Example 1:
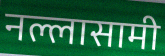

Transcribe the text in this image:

नल्लासामी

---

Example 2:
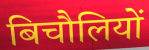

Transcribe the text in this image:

बिचौलियों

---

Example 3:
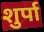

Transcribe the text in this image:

शुर्पा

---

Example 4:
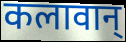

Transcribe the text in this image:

कलावान्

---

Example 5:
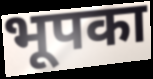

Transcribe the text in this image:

भूपका